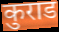
कुराड